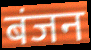
बंजन